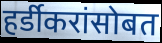
हर्डीकरांसोबत